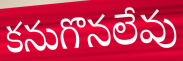
కనుగొనలేవు